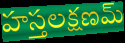
హస్తలక్షణమ్